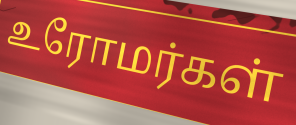
உரோமர்கள்